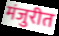
मंजुरीत